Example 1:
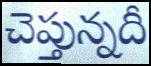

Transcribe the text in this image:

చెప్తున్నదీ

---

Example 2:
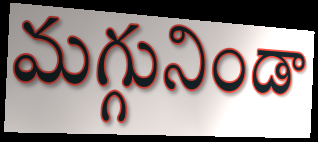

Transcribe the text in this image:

మగ్గునిండా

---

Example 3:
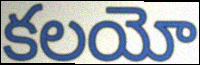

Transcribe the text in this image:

కలయో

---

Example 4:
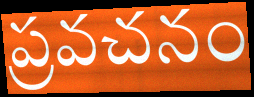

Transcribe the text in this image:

ప్రవచనం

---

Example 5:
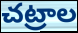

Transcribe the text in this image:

చట్రాల